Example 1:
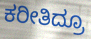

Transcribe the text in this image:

ಕರೀತಿದ್ರೂ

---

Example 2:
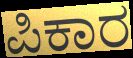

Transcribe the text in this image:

ಪಿಕಾರ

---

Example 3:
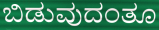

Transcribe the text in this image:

ಬಿಡುವುದಂತೂ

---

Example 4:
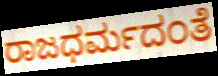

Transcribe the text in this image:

ರಾಜಧರ್ಮದಂತೆ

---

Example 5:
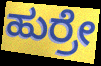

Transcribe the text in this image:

ಹುರ್ರೇ